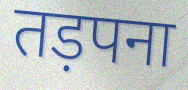
तड़पना